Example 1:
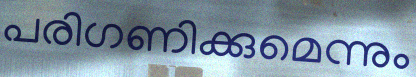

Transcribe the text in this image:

പരിഗണിക്കുമെന്നും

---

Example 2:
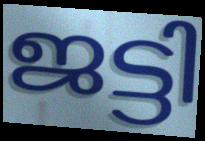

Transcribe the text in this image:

ജട്ടി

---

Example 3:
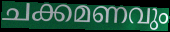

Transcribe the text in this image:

ചക്കമണവും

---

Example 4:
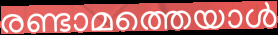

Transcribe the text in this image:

രണ്ടാമത്തെയാൾ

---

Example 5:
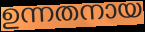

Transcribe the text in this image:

ഉന്നതനായ